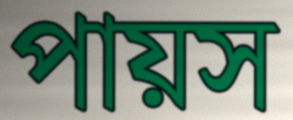
পায়স